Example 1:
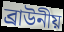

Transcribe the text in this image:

ব্ৰাউনীয়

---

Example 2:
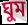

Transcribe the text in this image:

ঘুম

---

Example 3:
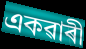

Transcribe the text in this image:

একৱাৰী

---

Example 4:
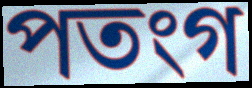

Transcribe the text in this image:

পতংগ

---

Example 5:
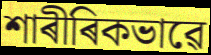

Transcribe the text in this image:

শাৰীৰিকভাৱে